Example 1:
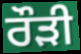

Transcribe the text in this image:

ਰੌੜੀ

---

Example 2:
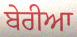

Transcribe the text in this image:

ਬੇਰੀਆ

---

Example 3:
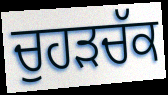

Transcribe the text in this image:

ਚੁਹੜਚੱਕ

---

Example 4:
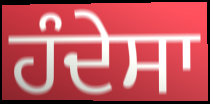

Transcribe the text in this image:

ਹੰਦੇਸਾ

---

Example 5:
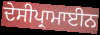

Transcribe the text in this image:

ਦੇਸੀਪ੍ਰਾਮਾਈਨ